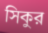
সিকুর